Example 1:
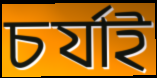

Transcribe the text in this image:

চর্যাই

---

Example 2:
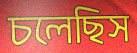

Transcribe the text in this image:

চলেছিস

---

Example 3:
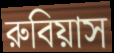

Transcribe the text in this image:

রুবিয়াস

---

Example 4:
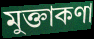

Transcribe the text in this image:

মুক্তাকণা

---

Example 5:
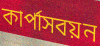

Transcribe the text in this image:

কার্পাসবয়ন